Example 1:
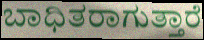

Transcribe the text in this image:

ಬಾಧಿತರಾಗುತ್ತಾರೆ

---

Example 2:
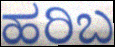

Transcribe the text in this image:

ಹರಿಬ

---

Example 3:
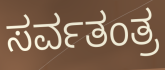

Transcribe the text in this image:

ಸರ್ವತಂತ್ರ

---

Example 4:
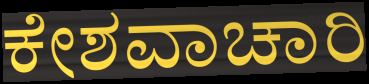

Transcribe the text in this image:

ಕೇಶವಾಚಾರಿ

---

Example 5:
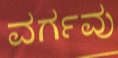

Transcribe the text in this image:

ವರ್ಗವು